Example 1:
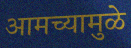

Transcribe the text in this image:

आमच्यामुळे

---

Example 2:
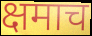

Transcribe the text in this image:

क्षमाच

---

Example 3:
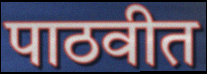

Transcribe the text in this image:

पाठवीत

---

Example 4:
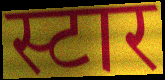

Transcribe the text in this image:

स्टार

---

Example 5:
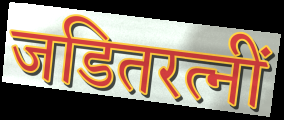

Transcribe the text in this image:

जडितरत्नीं